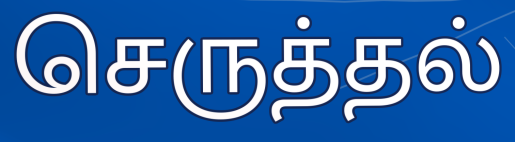
செருத்தல்